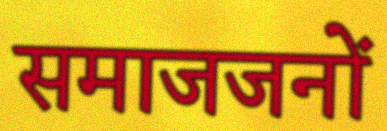
समाजजनों